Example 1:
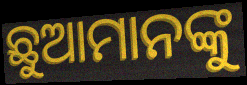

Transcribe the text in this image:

ଛୁଆମାନଙ୍କୁ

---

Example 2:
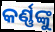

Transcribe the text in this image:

କର୍ଣ୍ଣଙ୍କୁ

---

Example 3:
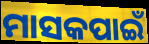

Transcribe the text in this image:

ମାସକପାଇଁ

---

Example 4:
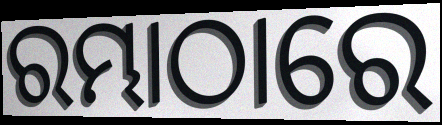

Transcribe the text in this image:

ରମ୍ଭାଠାରେ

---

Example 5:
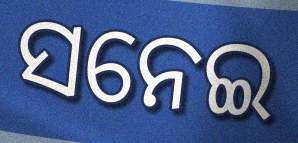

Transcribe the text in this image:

ସନେଇ